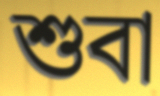
শুবা